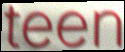
teen